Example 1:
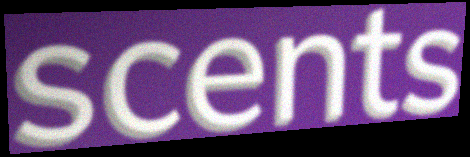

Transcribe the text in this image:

scents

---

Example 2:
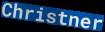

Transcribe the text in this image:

Christner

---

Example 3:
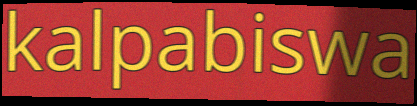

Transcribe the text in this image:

kalpabiswa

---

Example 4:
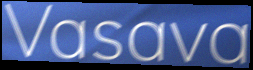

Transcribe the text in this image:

Vasava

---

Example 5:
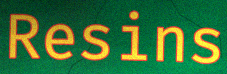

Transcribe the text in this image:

Resins